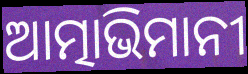
ଆତ୍ମାଭିମାନୀ